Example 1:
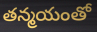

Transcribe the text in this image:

తన్మయంతో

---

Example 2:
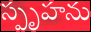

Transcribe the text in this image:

స్పృహను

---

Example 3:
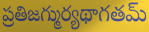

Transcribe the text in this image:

ప్రతిజగ్ముర్యథాగతమ్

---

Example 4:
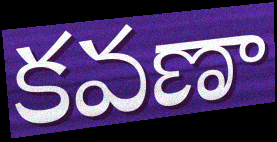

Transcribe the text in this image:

కవణా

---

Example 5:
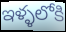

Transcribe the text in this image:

ఇళ్ళలోకి